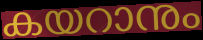
കയറാനും